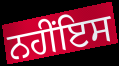
ਨਹੀਂਇਸ